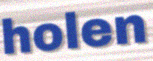
holen